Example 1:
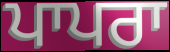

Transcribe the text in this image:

ਪਾਪਰਾ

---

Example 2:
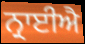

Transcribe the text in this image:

ਨ੍ਰਾਈਐ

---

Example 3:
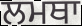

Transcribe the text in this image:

ਲਮਥਾ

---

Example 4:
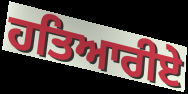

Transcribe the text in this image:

ਹਤਿਆਰੀਏ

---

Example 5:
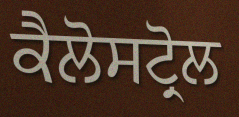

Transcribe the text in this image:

ਕੈਲੋਸਟ੍ਰੋਲ